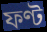
ফণ্ট